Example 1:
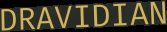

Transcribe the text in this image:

DRAVIDIAN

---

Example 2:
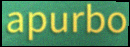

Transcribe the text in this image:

apurbo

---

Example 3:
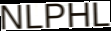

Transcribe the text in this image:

NLPHL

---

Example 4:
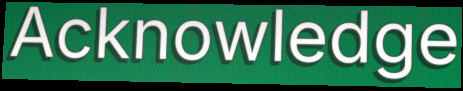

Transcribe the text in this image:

Acknowledge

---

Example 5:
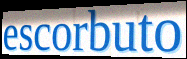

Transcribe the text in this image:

escorbuto